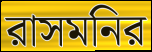
রাসমনির